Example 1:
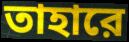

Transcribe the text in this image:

তাহারে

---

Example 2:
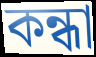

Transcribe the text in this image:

কন্ধা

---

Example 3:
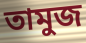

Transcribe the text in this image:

তামুজ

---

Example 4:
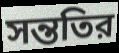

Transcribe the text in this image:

সন্ততির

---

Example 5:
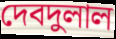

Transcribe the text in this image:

দেবদুলাল